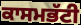
ਕਾਸਮਭੱਟੀ